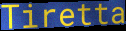
Tiretta